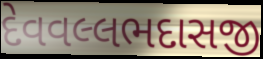
દેવવલ્લભદાસજી